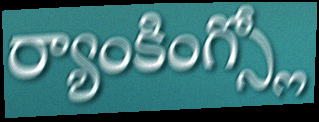
ర్యాంకింగ్స్లో